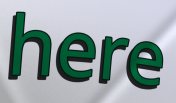
here